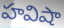
హవిషా